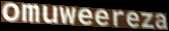
omuweereza